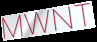
MWNT